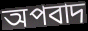
অপবাদ